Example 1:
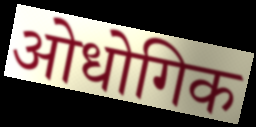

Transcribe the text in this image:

ओधोगिक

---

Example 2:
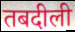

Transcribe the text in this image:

तबदीली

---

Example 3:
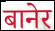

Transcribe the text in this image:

बानेर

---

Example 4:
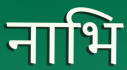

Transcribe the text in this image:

नाभि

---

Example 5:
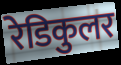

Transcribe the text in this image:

रेडिकुलर